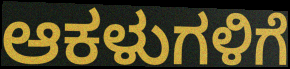
ಆಕಳುಗಳಿಗೆ